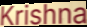
Krishna